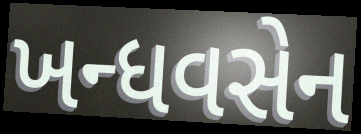
ખન્ધવસેન